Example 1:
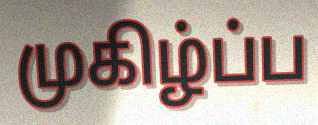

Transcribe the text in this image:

முகிழ்ப்ப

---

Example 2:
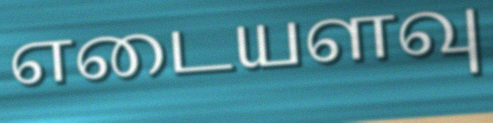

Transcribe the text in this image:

எடையளவு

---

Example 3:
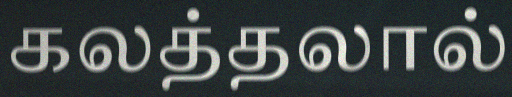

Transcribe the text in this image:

கலத்தலால்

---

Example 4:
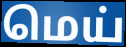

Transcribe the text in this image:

மெய்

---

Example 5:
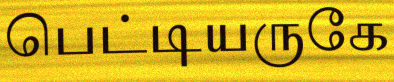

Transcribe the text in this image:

பெட்டியருகே